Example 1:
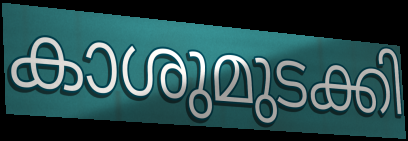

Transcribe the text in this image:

കാശുമുടക്കി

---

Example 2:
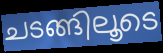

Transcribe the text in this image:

ചടങ്ങിലൂടെ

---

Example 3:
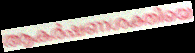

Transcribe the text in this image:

ആകർഷണശക്തിയെ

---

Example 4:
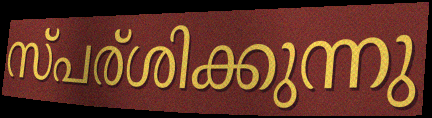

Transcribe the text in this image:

സ്പര്ശിക്കുന്നു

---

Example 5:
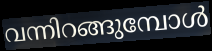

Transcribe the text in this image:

വന്നിറങ്ങുമ്പോൾ